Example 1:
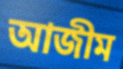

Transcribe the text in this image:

আজীম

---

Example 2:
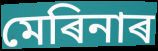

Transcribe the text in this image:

মেৰিনাৰ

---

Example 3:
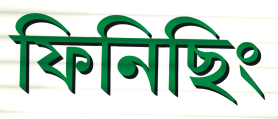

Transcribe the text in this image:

ফিনিছিং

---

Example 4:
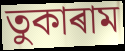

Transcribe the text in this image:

তুকাৰাম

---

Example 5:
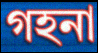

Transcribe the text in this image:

গহনা